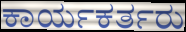
ಕಾರ್ಯಕರ್ತರು